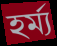
হর্ম্য